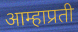
आम्हाप्रती